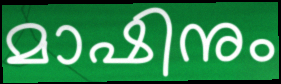
മാഷിനും